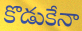
కొడుకేనా